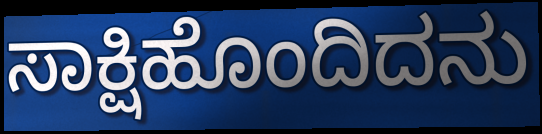
ಸಾಕ್ಷಿಹೊಂದಿದನು